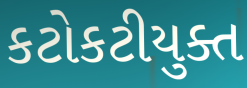
કટોકટીયુક્ત